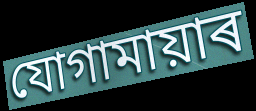
যোগামায়াৰ